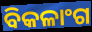
ବିକଳାଂଗ